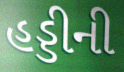
હડ્ડીની